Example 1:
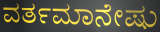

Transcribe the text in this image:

ವರ್ತಮಾನೇಷು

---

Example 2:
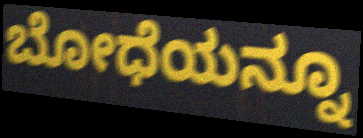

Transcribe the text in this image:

ಬೋಧೆಯನ್ನೂ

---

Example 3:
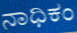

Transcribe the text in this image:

ನಾಧಿಕಂ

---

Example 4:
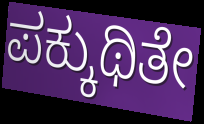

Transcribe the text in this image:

ಪಕ್ಕುಥಿತೇ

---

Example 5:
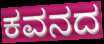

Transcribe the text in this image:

ಕವನದ